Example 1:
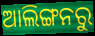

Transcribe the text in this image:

ଆଲିଙ୍ଗନରୁ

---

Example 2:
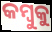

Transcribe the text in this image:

କମ୍ବୁକୁ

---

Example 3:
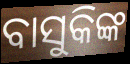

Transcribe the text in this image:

ବାସୁକିଙ୍କ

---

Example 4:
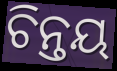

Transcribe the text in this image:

ଚିନ୍ତୟ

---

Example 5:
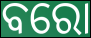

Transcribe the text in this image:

ବରୋ